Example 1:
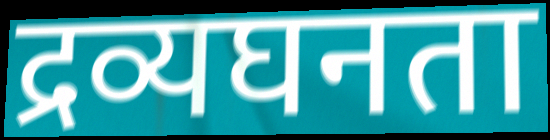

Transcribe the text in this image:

द्रव्यघनता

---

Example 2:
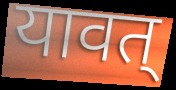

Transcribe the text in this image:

यावत्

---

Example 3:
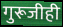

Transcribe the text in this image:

गुरूजीही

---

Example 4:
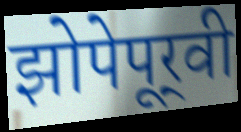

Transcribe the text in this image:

झोपेपूर्वी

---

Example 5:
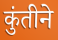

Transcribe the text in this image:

कुंतीने